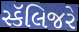
સ્કૅલિજરે